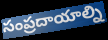
సంప్రదాయాల్ని